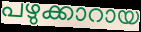
പഴുക്കാറായ